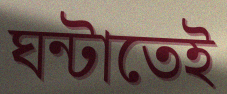
ঘন্টাতেই